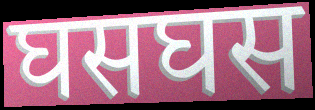
घसघस